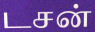
டசன்